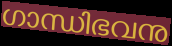
ഗാന്ധിഭവനു